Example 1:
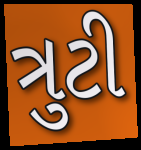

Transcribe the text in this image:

ત્રુટી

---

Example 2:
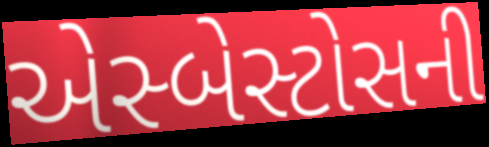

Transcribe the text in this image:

એસ્બેસ્ટોસની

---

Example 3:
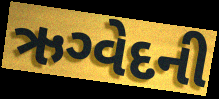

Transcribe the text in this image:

ઋગ્વેદની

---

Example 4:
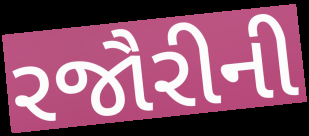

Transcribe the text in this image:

રજૌરીની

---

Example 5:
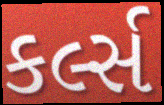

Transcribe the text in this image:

કર્લ્સ